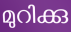
മുറിക്കു